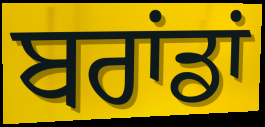
ਬਰਾਂਡਾਂ